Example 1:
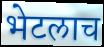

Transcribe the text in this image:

भेटलाच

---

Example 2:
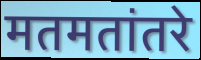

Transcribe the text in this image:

मतमतांतरे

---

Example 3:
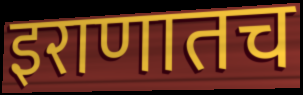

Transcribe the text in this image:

इराणातच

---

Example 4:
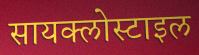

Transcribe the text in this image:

सायक्लोस्टाइल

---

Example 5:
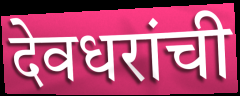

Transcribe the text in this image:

देवधरांची